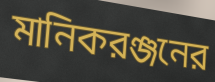
মানিকরঞ্জনের